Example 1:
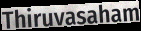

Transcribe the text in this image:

Thiruvasaham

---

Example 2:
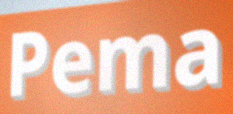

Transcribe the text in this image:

Pema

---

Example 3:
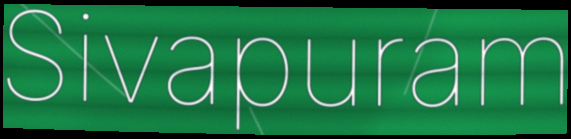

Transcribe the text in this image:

Sivapuram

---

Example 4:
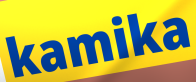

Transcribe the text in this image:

kamika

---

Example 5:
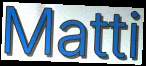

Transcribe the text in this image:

Matti